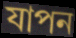
যাপন